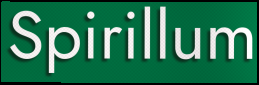
Spirillum